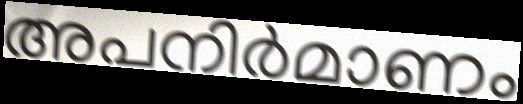
അപനിർമാണം